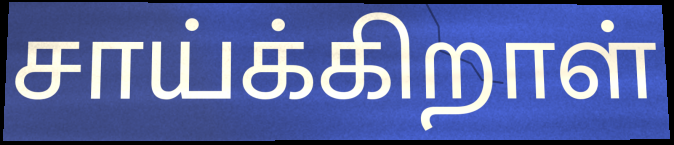
சாய்க்கிறாள்